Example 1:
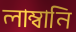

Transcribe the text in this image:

লাম্বানি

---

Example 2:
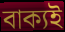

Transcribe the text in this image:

বাক্যই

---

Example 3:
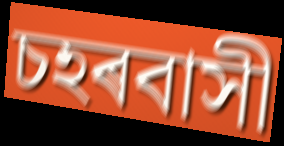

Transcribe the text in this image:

চহৰবাসী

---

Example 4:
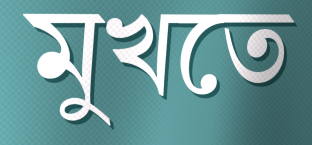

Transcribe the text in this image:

মুখতে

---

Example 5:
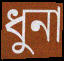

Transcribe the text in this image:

ধুনা